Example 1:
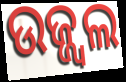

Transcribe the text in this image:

ଉଜ୍ଜ୍ୱଲ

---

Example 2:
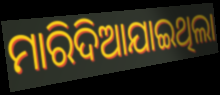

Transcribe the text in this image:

ମାରିଦିଆଯାଇଥିଲା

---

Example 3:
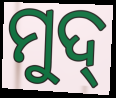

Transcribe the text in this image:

ମୁଦ୍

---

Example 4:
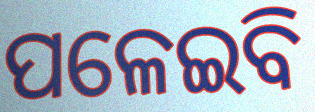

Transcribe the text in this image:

ପଳେଇବି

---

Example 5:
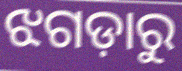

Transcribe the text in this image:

ଝଗଡ଼ାରୁ